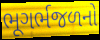
ભૂગર્ભજળનો